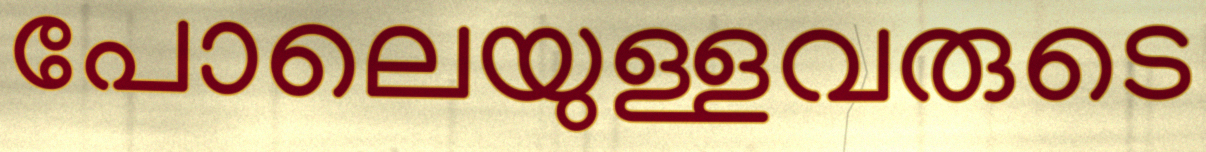
പോലെയുള്ളവരുടെ